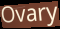
Ovary